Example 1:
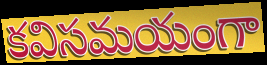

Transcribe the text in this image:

కవిసమయంగా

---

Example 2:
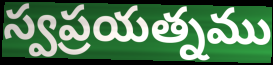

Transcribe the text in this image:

స్వప్రయత్నము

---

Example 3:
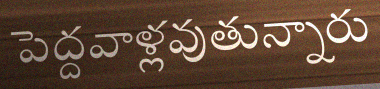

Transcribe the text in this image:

పెద్దవాళ్లవుతున్నారు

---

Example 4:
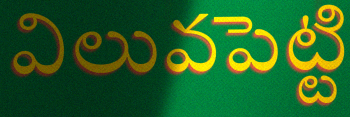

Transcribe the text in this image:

విలువపెట్టి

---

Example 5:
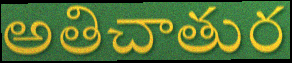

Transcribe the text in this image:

అతిచాతుర